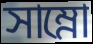
সাম্নো